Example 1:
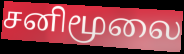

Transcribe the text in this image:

சனிமூலை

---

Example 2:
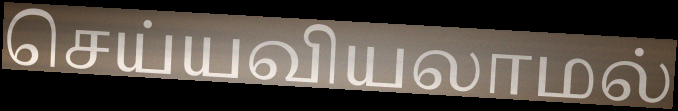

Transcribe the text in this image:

செய்யவியலாமல்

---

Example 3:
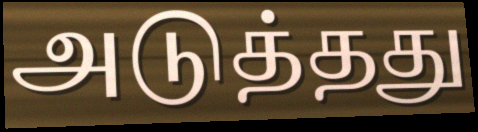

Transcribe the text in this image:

அடுத்தது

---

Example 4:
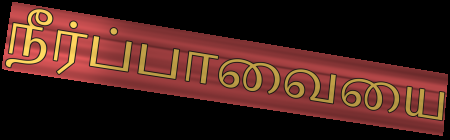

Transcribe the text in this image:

நீர்ப்பாவையை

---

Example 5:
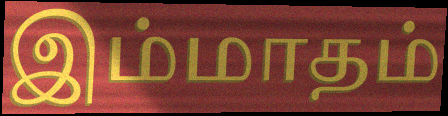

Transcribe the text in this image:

இம்மாதம்